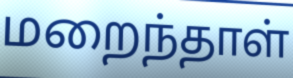
மறைந்தாள்